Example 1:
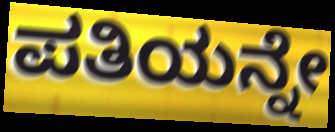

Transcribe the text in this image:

ಪತಿಯನ್ನೇ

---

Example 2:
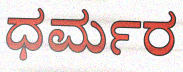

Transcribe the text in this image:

ಧರ್ಮರ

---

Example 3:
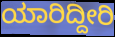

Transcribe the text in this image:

ಯಾರಿದ್ದೀರಿ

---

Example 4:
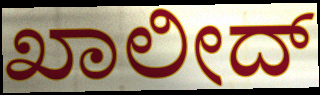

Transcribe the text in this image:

ಖಾಲೀದ್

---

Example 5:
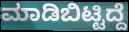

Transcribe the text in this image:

ಮಾಡಿಬಿಟ್ಟಿದ್ದೆ